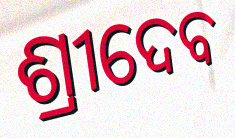
ଶ୍ରୀଦେବ